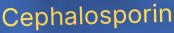
Cephalosporin